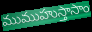
ముముహుస్తాసాం